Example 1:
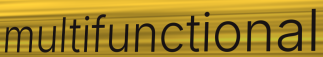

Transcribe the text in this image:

multifunctional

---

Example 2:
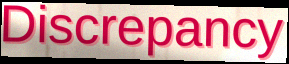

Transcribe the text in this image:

Discrepancy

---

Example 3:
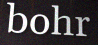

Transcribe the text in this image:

bohr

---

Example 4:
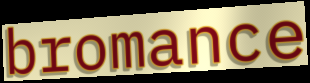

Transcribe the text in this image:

bromance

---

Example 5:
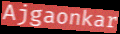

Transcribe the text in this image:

Ajgaonkar